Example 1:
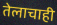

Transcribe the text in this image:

तेलाचाही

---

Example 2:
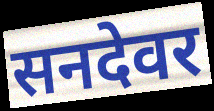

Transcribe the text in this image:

सनदेवर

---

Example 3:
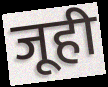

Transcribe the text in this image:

जूही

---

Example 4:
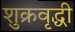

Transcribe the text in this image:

शुक्रवृद्धी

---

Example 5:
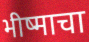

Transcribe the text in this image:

भीष्माचा